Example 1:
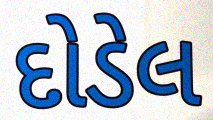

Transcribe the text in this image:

દોડેલ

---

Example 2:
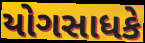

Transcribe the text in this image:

યોગસાધકે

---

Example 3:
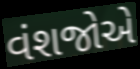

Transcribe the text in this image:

વંશજોએ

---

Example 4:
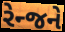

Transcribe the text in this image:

રેન્જને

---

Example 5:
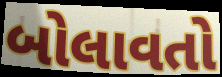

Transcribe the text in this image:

બોલાવતો